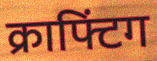
क्राफ्टिंग